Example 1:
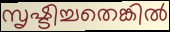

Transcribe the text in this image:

സൃഷ്ടിച്ചതെങ്കിൽ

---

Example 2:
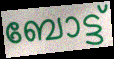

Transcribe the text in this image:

ബോട്ട്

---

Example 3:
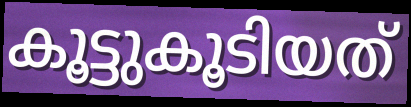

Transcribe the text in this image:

കൂട്ടുകൂടിയത്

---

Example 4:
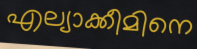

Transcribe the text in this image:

എല്യാക്കീമിനെ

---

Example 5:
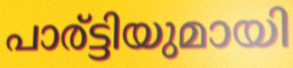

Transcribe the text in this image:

പാര്ട്ടിയുമായി